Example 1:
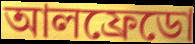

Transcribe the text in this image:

আলফ্রেডো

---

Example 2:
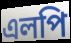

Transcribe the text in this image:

এলপি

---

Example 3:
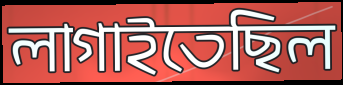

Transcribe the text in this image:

লাগাইতেছিল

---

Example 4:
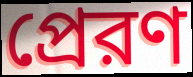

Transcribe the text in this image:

প্রেরণ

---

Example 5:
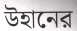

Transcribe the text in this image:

উহানের